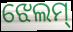
ଝେଲମ୍